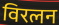
विरलन